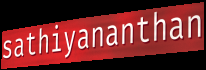
sathiyananthan